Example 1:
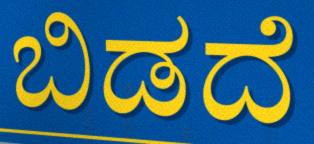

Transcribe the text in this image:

ಬಿಡದೆ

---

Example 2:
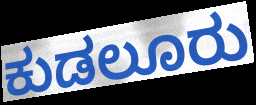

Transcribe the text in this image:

ಕುಡಲೂರು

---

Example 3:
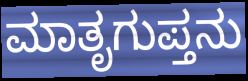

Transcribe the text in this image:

ಮಾತೃಗುಪ್ತನು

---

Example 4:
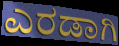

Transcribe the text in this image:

ಎರಡಾಗಿ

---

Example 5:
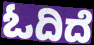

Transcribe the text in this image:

ಓದಿದೆ